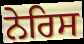
ਨੇਰਿਸ